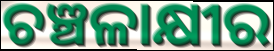
ଚଞ୍ଚଳାକ୍ଷୀର